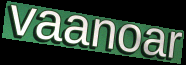
vaanoar